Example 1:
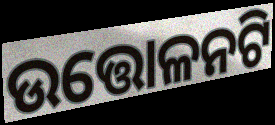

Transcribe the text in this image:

ଉତ୍ତୋଳନଟି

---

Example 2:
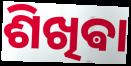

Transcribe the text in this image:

ଶିଖିଵା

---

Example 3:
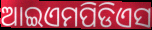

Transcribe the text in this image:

ଆଇଏମପିଡିଏସ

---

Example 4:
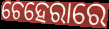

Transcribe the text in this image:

ଚେହେରାରେ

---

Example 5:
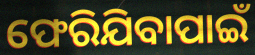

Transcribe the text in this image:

ଫେରିଯିବାପାଇଁ